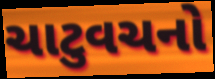
ચાટુવચનો